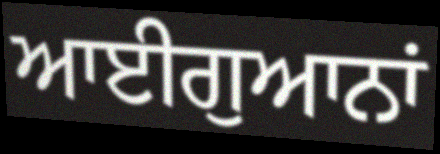
ਆਈਗੁਆਨਾਂ